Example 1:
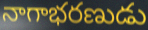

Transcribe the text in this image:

నాగాభరణుడు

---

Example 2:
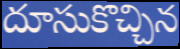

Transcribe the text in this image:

దూసుకొచ్చిన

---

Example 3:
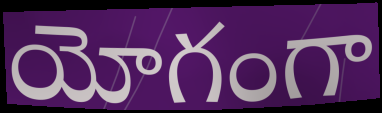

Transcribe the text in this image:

యోగంగా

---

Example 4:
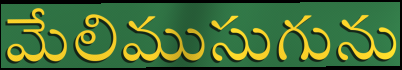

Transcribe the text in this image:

మేలిముసుగును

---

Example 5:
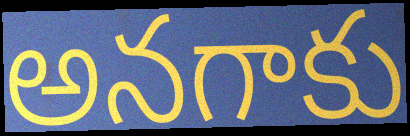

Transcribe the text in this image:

అనగాకు